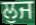
ਲੁਜ